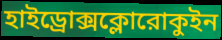
হাইড্রোক্সক্লোরোকুইন